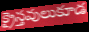
క్రైస్తవులుకూడ